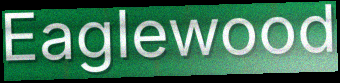
Eaglewood